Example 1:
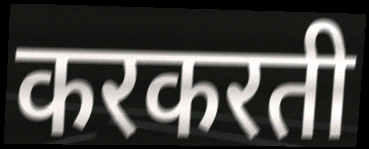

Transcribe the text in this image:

करकरती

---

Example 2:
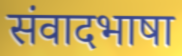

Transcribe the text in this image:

संवादभाषा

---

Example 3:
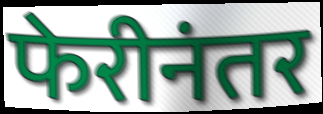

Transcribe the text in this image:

फेरीनंतर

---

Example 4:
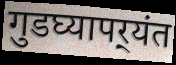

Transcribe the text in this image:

गुडघ्यापर्यंत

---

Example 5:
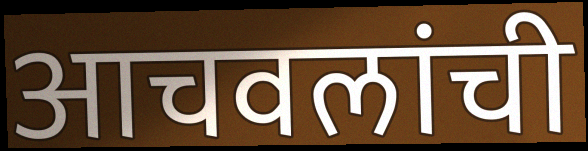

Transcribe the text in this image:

आचवलांची